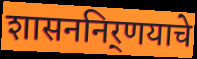
शासननिर्णयाचे